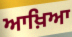
ਆਖ਼ਿਆ